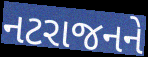
નટરાજનને